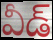
వీడ్